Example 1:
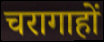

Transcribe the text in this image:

चरागाहों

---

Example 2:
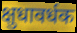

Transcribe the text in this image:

क्षुधावर्धक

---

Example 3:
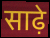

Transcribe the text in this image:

साढ़े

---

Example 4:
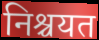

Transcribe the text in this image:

निश्चयत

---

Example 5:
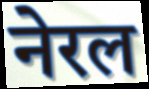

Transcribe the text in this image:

नेरल